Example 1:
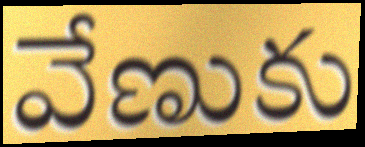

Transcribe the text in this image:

వేణుకు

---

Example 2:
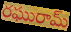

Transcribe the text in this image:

రఘురామ్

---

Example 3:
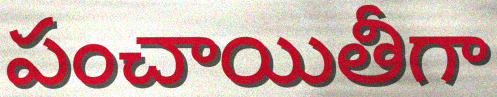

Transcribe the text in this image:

పంచాయితీగా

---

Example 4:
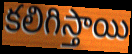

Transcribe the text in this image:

కలిగిస్తాయి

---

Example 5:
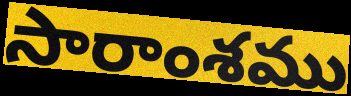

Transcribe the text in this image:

సారాంశము